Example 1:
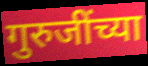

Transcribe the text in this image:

गुरुजींच्या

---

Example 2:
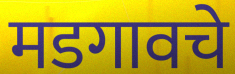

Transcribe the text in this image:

मडगावचे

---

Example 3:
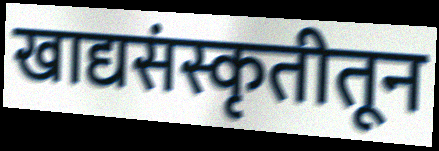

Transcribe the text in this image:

खाद्यसंस्कृतीतून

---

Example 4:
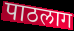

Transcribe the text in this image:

पाठलाग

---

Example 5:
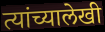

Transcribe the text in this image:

त्यांच्यालेखी